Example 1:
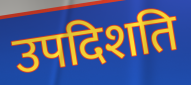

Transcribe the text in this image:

उपदिशति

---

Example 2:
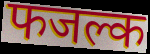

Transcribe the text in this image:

फजल्क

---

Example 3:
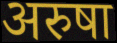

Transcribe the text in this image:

अरुषा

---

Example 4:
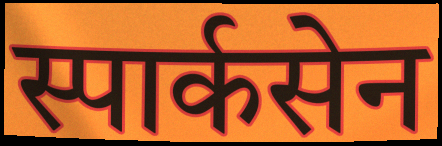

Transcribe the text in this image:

स्पार्कसेन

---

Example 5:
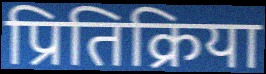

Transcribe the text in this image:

प्रितिक्रिया